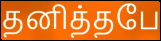
தனித்தபே